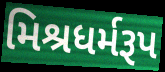
મિશ્રધર્મરૂપ